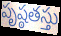
పృష్ఠతస్తు